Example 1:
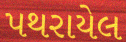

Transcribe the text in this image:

પથરાયેલ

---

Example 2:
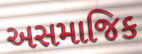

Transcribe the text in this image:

અસમાજિક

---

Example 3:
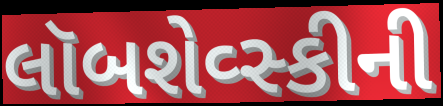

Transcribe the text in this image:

લૉબશેવ્સ્કીની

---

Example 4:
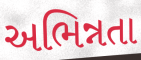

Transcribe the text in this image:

અભિન્નતા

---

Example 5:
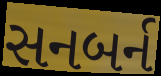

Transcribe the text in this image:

સનબર્ન